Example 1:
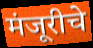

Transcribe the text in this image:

मंजूरीचे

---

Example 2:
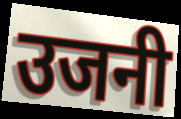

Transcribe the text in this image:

उजनी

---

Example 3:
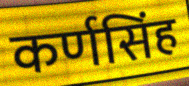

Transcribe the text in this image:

कर्णसिंह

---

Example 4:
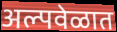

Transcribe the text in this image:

अल्पवेळात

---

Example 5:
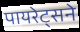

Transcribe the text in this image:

पायरेट्सने